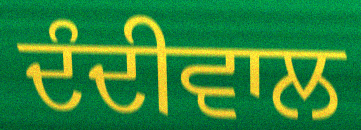
ਦੰਦੀਵਾਲ